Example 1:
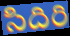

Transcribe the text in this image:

సిదిరి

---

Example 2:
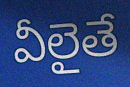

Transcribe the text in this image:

వీలైతే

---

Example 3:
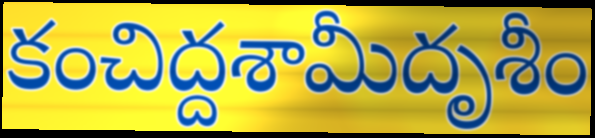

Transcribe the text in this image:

కంచిద్దశామీదృశీం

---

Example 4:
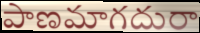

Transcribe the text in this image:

పాణమాగదురా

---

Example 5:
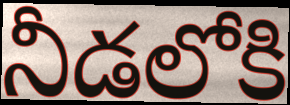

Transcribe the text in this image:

నీడలోకి